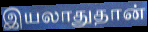
இயலாதுதான்